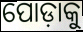
ପୋଡ଼ାକୁ